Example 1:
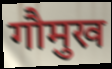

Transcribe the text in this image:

गौमुख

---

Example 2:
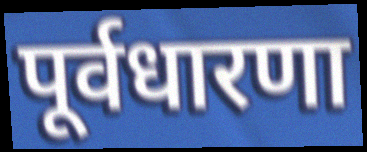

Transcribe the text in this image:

पूर्वधारणा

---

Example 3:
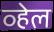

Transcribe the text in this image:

व्हेल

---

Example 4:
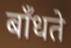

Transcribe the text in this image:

बाँधते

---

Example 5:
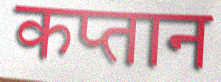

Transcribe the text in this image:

कप्‍तान